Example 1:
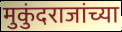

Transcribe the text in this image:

मुकुंदराजांच्या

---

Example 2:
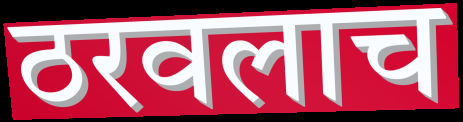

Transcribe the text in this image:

ठरवलाच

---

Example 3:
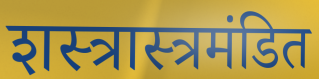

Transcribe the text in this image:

शस्त्रास्त्रमंडित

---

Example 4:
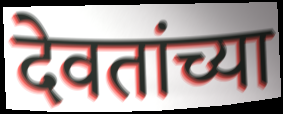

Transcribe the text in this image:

देवतांच्या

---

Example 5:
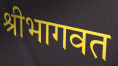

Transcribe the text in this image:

श्रीभागवत